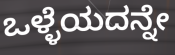
ಒಳ್ಳೆಯದನ್ನೇ